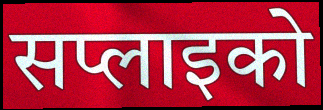
सप्लाइको